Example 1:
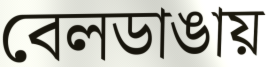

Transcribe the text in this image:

বেলডাঙায়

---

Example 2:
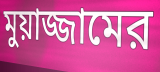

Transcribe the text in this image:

মুয়াজ্জামের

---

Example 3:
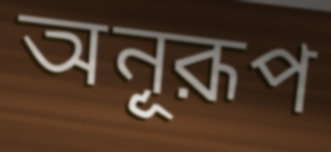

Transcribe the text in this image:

অনূরূপ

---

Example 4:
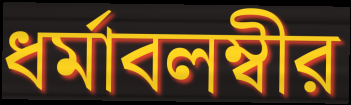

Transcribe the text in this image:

ধর্মাবলম্বীর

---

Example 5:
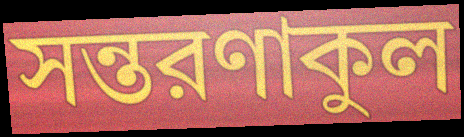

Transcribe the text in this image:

সন্তরণাকুল